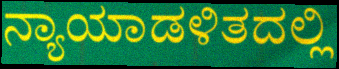
ನ್ಯಾಯಾಡಳಿತದಲ್ಲಿ